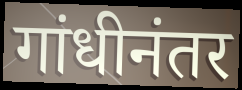
गांधीनंतर